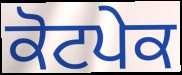
ਕੋਟਪੇਕ